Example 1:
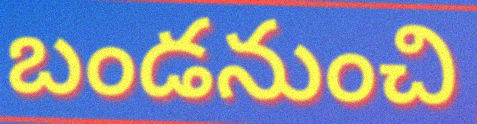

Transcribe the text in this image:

బండనుంచి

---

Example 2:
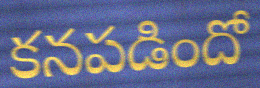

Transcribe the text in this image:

కనపడిందో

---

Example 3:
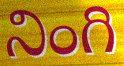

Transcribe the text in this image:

నింగి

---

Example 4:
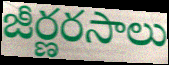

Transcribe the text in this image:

జీర్ణరసాలు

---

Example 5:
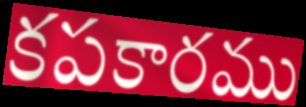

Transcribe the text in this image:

కపకారము